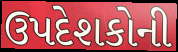
ઉપદેશકોની